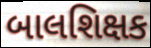
બાલશિક્ષક